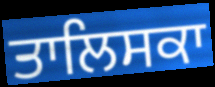
ਤਾਲਿਸਕਾ